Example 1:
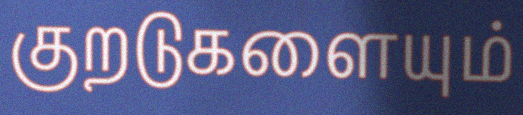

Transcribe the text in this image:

குறடுகளையும்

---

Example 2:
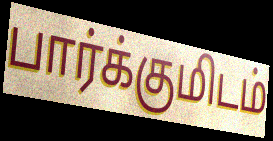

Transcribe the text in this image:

பார்க்குமிடம்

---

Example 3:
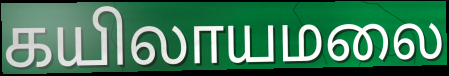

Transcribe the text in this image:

கயிலாயமலை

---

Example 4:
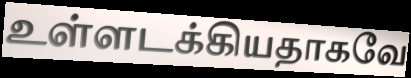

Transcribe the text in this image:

உள்ளடக்கியதாகவே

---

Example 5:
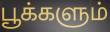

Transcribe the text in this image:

பூக்களும்